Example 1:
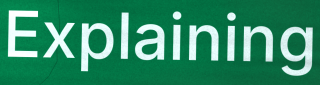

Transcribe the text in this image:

Explaining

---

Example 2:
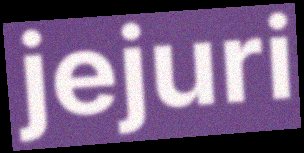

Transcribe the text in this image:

jejuri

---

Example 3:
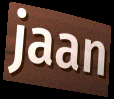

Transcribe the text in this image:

jaan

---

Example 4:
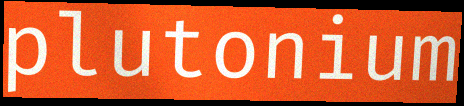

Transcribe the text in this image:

plutonium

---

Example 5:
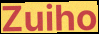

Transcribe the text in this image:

Zuiho